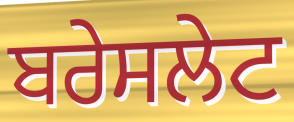
ਬਰੇਸਲੇਟ